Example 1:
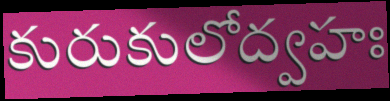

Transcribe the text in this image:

కురుకులోద్వహః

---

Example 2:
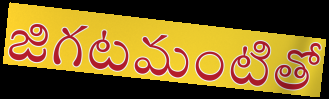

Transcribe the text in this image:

జిగటమంటితో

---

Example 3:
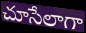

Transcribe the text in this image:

చూసేలాగా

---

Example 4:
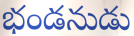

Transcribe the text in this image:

భండనుడు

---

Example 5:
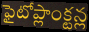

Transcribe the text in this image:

ఫైటోప్లాంక్టన్ల